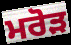
ਮਰੋੜ